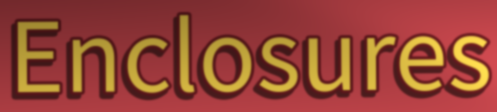
Enclosures